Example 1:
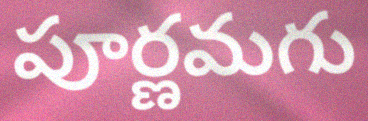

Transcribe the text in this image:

పూర్ణమగు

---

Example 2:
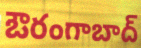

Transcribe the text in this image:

ఔరంగాబాద్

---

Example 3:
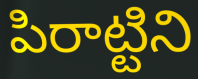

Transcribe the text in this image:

పిరాట్టిని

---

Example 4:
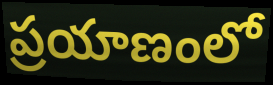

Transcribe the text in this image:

ప్రయాణంలో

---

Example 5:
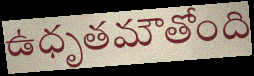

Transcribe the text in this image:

ఉధృతమౌతోంది